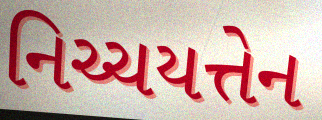
નિચ્ચયત્તેન